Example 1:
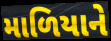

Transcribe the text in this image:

માળિયાને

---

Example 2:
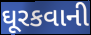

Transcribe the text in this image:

ઘૂરકવાની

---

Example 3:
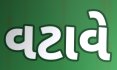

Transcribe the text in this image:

વટાવે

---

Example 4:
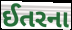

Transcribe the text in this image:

ઈતરના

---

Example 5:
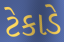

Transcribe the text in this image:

ટેકાડે